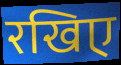
रखिए